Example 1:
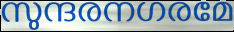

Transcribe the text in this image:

സുന്ദരനഗരമേ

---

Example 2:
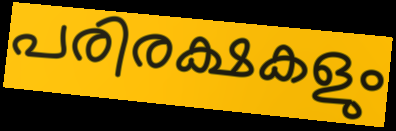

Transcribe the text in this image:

പരിരക്ഷകളും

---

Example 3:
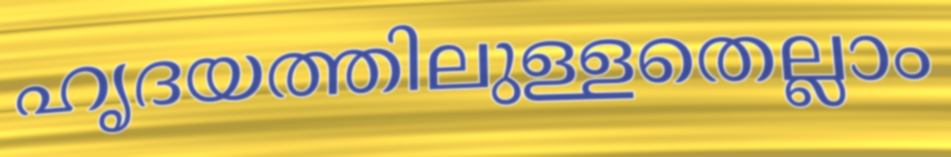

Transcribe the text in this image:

ഹൃദയത്തിലുള്ളതെല്ലാം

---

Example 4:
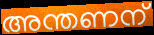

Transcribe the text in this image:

അന്തണന്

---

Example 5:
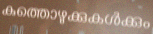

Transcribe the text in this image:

കുത്തൊഴുക്കുകൾക്കും